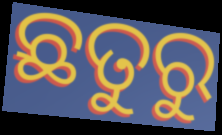
ଛତୁରୁ